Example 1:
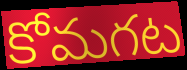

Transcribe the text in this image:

కోమగట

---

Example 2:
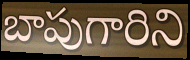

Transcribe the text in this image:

బాపుగారిని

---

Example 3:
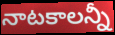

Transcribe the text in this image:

నాటకాలన్నీ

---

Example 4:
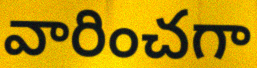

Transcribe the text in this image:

వారించగా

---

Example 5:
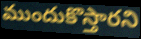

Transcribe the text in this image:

ముందుకొస్తారని